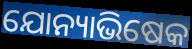
ଯୋନ୍ୟାଭିଷେକ